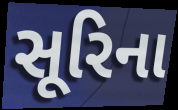
સૂરિના